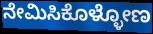
ನೇಮಿಸಿಕೊಳ್ಳೋಣ